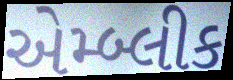
એમ્બ્લીક